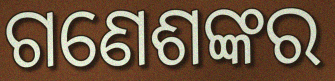
ଗଣେଶଙ୍କର